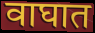
वाघात